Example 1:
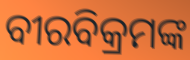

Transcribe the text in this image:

ବୀରବିକ୍ରମଙ୍କ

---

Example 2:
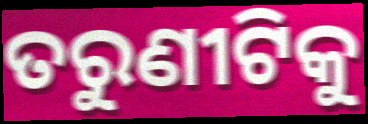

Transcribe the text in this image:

ତରୁଣୀଟିକୁ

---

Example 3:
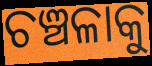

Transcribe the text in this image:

ଚଞ୍ଚଳାକୁ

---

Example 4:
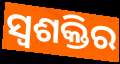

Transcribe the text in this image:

ସ୍ଵଶକ୍ତିର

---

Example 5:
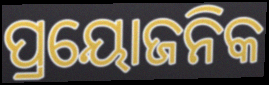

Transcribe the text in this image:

ପ୍ରୟୋଜନିକ